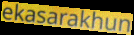
ekasarakhun